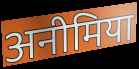
अनीमिया